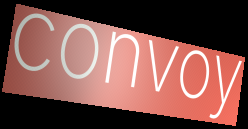
convoy